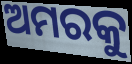
ଅମରକୁ